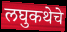
लघुकथेचे